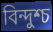
বিন্দুশ্চ